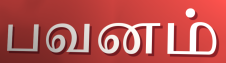
பவனம்